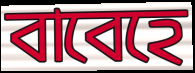
বাবেহে